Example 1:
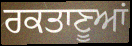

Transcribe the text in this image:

ਰਕਤਾਣੂਆਂ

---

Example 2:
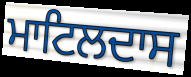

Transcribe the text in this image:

ਮਾਟਿਲਦਾਸ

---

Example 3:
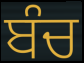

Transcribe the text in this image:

ਬੰਚ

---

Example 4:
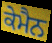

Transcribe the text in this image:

ਕੇਮੈਨ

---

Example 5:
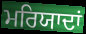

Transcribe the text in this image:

ਮਰਿਯਾਦਾਂ